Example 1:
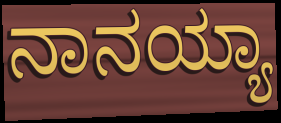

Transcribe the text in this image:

ನಾನಯ್ಯಾ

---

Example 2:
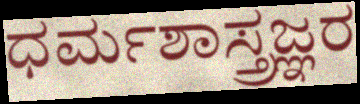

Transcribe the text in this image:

ಧರ್ಮಶಾಸ್ತ್ರಜ್ಞರ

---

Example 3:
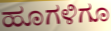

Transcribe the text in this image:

ಹೂಗಳಿಗೂ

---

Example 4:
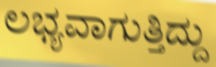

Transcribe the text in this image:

ಲಭ್ಯವಾಗುತ್ತಿದ್ದು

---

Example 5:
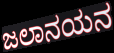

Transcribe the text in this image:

ಜಲಾನಯನ